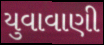
યુવાવાણી